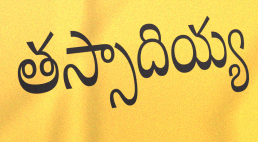
తస్సాదియ్య